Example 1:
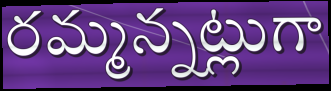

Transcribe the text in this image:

రమ్మన్నట్లుగా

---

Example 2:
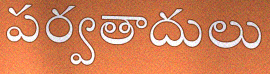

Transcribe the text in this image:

పర్వతాదులు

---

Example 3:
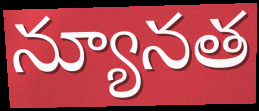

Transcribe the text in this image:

న్యూనత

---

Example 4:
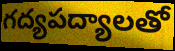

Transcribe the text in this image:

గద్యపద్యాలతో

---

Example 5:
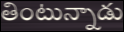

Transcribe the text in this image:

తింటున్నాడు